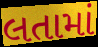
લતામાં